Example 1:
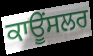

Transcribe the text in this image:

ਕਾਊਂਸਲਰ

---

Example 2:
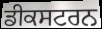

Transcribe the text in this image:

ਡੀਕਸਟਰਨ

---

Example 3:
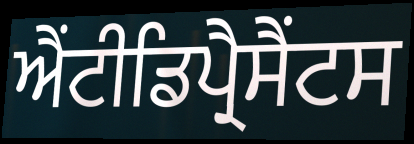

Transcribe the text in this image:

ਐਂਟੀਡਿਪ੍ਰੈਸੈਂਟਸ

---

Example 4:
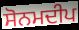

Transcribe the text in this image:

ਸੋਨਮਦੀਪ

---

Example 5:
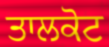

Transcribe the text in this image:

ਤਾਲਕੋਟ